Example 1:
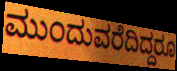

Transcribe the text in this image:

ಮುಂದುವರೆದಿದ್ದರೂ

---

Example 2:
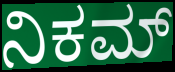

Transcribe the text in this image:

ನಿಕಮ್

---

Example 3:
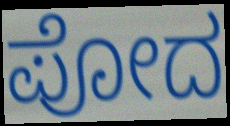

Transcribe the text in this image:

ಪೋದ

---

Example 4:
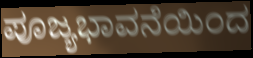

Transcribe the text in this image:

ಪೂಜ್ಯಭಾವನೆಯಿಂದ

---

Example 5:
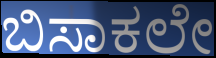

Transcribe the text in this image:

ಬಿಸಾಕಲೇ